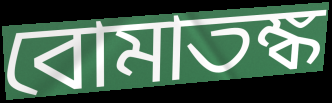
বোমাতঙ্ক